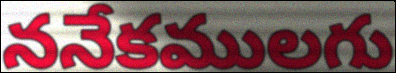
ననేకములగు